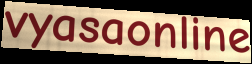
vyasaonline